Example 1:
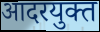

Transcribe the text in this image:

आदरयुक्त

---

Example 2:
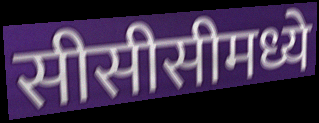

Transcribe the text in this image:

सीसीसीमध्ये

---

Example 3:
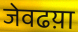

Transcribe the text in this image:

जेवढय़ा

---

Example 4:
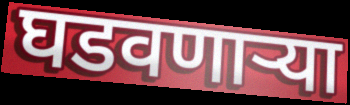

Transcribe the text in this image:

घडवणाऱ्या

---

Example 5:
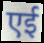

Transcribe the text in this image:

एई